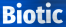
Biotic